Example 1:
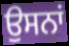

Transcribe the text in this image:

ਉਸਨਾਂ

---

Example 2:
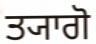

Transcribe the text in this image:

ਤ੍ਯਾਗੋ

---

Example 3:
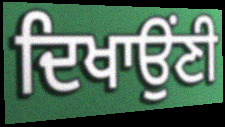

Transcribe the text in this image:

ਦਿਖਾਉਂਣੀ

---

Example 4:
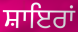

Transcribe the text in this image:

ਸ਼ਾਇਰਾਂ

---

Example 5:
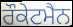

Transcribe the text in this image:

ਰੌਕੇਟਮੈਨ